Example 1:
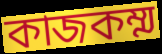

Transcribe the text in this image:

কাজকম্ম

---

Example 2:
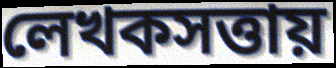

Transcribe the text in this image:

লেখকসত্তায়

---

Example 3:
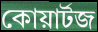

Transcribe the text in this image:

কোয়ার্টজ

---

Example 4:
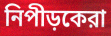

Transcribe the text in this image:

নিপীড়কেরা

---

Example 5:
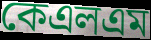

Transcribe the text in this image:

কেএলএম